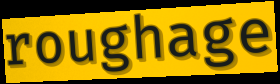
roughage